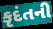
કૃદંતની